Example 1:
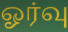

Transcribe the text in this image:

ஓர்வு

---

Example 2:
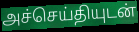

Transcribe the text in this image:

அச்செய்தியுடன்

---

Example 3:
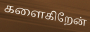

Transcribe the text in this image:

களைகிறேன்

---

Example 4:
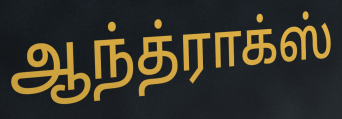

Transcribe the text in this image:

ஆந்த்ராக்ஸ்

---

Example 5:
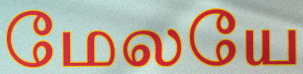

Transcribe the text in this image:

மேலயே